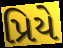
પ્રિયે